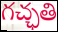
గచ్ఛతి